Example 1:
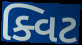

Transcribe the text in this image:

ક્વિટ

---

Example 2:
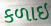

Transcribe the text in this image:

કળાઇ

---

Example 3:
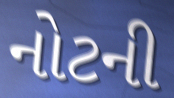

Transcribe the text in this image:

નોટની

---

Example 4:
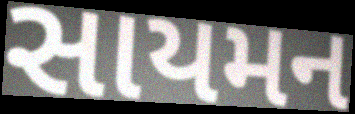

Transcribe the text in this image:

સાયમન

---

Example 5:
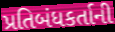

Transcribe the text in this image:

પ્રતિબંધકર્તાની